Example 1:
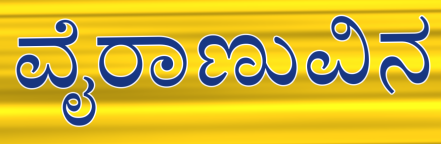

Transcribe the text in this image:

ವೈರಾಣುವಿನ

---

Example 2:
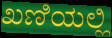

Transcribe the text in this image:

ಖಣಿಯಲ್ಲಿ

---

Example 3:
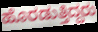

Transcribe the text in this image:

ಹೊರಡುತ್ತಿದ್ದರು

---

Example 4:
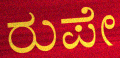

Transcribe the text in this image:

ರುಪೇ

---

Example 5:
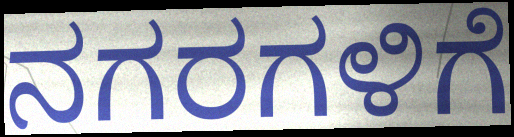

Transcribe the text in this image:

ನಗರಗಳಿಗೆ